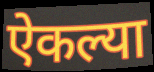
ऐकल्या